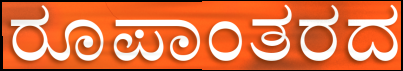
ರೂಪಾಂತರದ